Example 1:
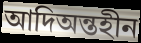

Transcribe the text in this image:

আদিঅন্তহীন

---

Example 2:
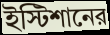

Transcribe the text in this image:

ইস্টিশানের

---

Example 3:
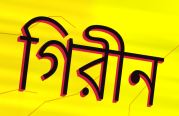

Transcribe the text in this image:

গিরীন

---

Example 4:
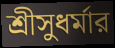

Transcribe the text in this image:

শ্রীসুধর্মার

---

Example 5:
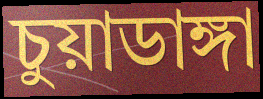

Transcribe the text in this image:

চুয়াডাঙ্গা